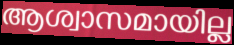
ആശ്വാസമായില്ല